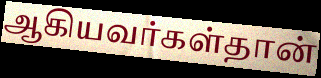
ஆகியவர்கள்தான்